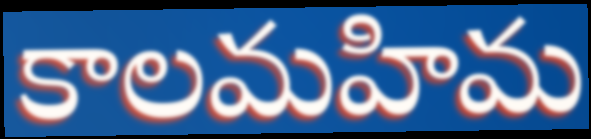
కాలమహిమ